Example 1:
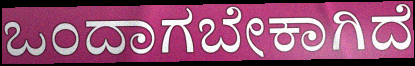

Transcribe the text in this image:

ಒಂದಾಗಬೇಕಾಗಿದೆ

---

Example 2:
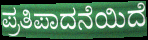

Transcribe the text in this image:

ಪ್ರತಿಪಾದನೆಯಿದೆ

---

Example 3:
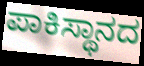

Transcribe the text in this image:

ಪಾಕಿಸ್ಥಾನದ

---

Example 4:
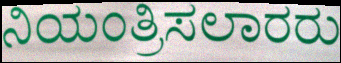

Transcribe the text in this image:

ನಿಯಂತ್ರಿಸಲಾರರು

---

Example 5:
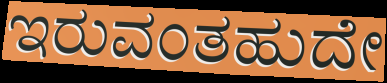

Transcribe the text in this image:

ಇರುವಂತಹುದೇ